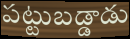
పట్టుబడ్డాడు